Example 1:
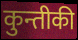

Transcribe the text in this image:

कुन्तीकी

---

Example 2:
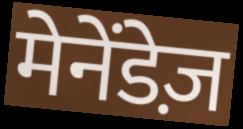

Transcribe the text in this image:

मेनेंडेज़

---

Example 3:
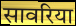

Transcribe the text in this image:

सावरिया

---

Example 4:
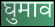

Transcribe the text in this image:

घुमाव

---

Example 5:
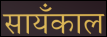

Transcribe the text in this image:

सायँकाल